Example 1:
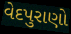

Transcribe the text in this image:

વેદપુરાણો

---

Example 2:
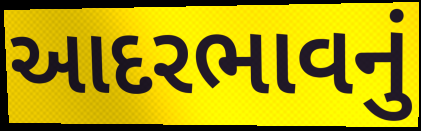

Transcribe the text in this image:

આદરભાવનું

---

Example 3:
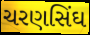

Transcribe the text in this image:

ચરણસિંઘ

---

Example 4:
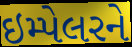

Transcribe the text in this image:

ઇમ્પેલરને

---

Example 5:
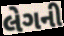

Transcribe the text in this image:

લેગની